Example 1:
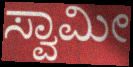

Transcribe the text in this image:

ಸ್ವಾಮೀ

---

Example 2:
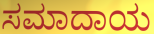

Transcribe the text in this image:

ಸಮಾದಾಯ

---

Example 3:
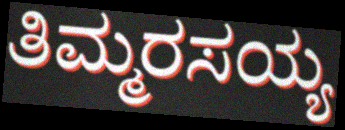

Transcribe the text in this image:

ತಿಮ್ಮರಸಯ್ಯ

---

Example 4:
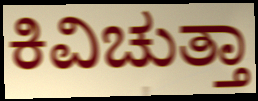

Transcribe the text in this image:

ಕಿವಿಚುತ್ತಾ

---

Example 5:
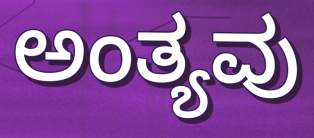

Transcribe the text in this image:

ಅಂತ್ಯವು